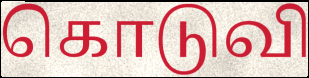
கொடுவி